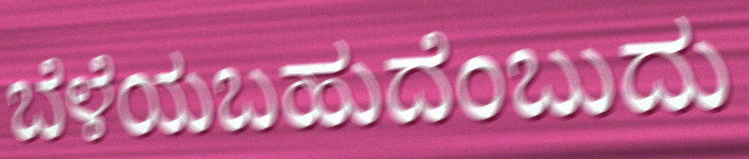
ಬೆಳೆಯಬಹುದೆಂಬುದು